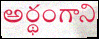
అర్థంగాని